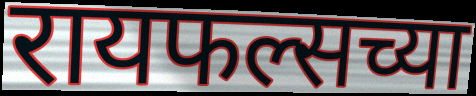
रायफल्सच्या